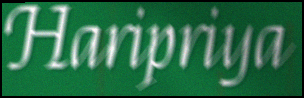
Haripriya